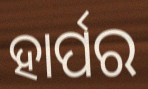
ହାର୍ପର